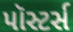
પૉસ્ટર્સ